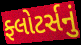
ફ્લોટર્સનું